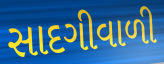
સાદગીવાળી